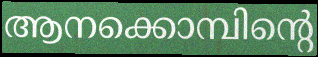
ആനക്കൊമ്പിന്റെ